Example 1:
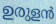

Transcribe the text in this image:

ഉരുളൻ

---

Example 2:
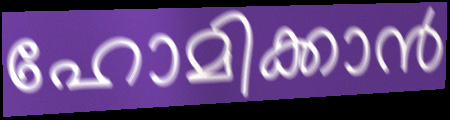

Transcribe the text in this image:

ഹോമിക്കാൻ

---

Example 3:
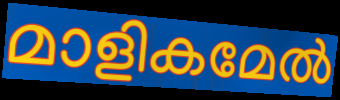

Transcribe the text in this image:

മാളികമേൽ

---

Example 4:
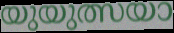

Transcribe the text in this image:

യുയുത്സയാ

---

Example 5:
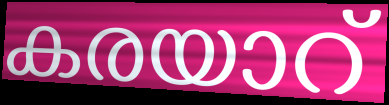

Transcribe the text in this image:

കരയാറ്